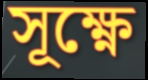
সূক্ষ্ণে